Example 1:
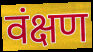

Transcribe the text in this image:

वंक्षण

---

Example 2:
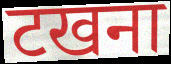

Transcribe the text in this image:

टखना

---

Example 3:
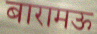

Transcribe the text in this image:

बारामऊ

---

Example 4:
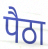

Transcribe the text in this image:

पैठा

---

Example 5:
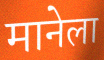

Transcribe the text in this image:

मानेला